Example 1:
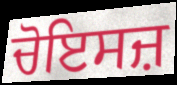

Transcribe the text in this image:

ਚੋਇਸਜ਼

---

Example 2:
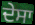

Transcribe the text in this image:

ਦੇਸਾ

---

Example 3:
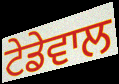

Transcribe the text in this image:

ਟੇਡੇਵਾਲ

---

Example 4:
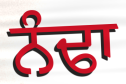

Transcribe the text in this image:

ਨੰਢਾ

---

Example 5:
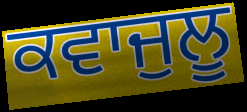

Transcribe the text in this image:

ਕਵਾਜੁਲੂ